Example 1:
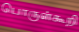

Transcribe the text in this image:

பொருள்கூறி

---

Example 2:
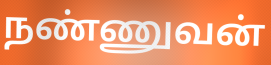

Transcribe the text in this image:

நண்ணுவன்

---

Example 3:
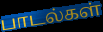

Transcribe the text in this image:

பாடல்கள்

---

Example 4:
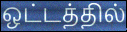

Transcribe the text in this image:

ஒட்டத்தில்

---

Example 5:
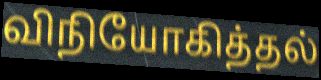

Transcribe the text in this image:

விநியோகித்தல்